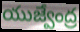
యుజ్వేంద్ర